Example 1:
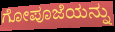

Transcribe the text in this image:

ಗೋಪೂಜೆಯನ್ನು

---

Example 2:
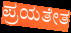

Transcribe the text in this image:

ಪ್ರಯತೇತ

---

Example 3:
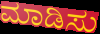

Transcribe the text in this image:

ಮಾಡಿಸು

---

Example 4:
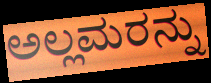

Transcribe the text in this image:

ಅಲ್ಲಮರನ್ನು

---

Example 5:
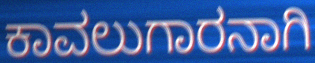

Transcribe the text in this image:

ಕಾವಲುಗಾರನಾಗಿ